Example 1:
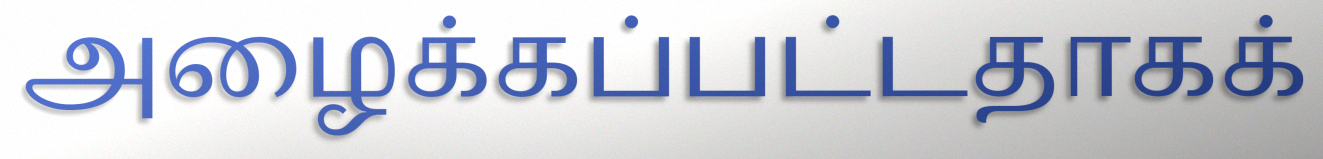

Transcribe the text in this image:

அழைக்கப்பட்டதாகக்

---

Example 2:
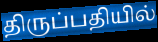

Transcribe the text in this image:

திருப்பதியில்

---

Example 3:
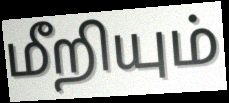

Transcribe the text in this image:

மீறியும்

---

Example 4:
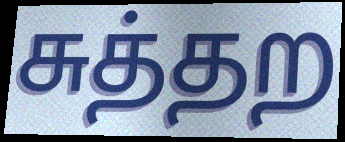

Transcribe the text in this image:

சுத்தற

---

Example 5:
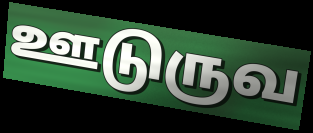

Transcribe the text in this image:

ஊடுருவ